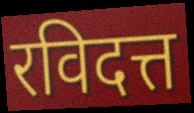
रविदत्त